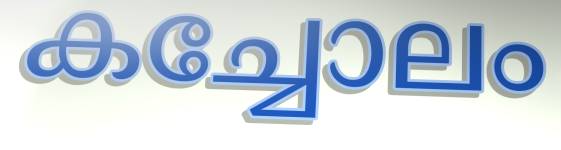
കച്ചോലം